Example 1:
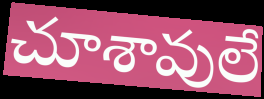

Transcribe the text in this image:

చూశావులే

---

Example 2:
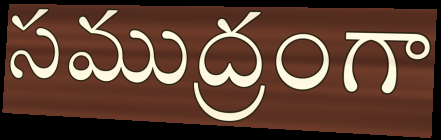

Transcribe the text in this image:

సముద్రంగా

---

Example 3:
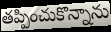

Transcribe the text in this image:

తప్పించుకొన్నాను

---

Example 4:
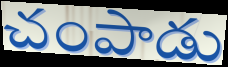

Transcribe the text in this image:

చంపాడు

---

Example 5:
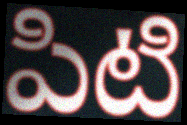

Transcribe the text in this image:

పిటి